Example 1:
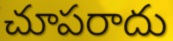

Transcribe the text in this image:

చూపరాదు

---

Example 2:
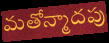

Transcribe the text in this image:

మతోన్మాదపు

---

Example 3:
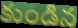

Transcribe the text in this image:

కుండిన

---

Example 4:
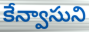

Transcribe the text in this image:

కేన్వాసుని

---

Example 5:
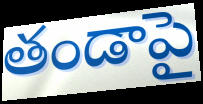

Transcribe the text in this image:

తండాపై